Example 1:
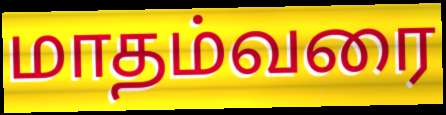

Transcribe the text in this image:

மாதம்வரை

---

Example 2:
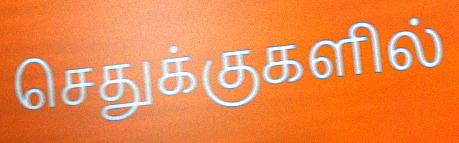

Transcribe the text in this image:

செதுக்குகளில்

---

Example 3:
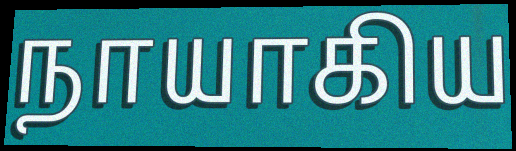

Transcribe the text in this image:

நாயாகிய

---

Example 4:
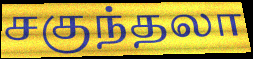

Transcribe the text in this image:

சகுந்தலா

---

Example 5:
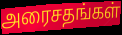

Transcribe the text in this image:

அரைசதங்கள்